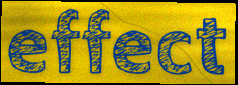
effect